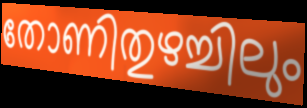
തോണിതുഴച്ചിലും